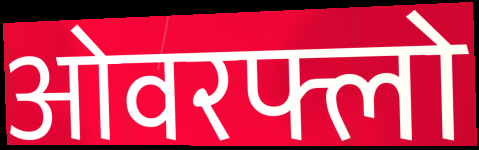
ओवरफ्लो